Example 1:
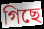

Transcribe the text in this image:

গিছে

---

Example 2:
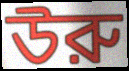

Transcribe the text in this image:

উরু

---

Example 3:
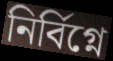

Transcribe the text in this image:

নির্বিগ্নে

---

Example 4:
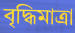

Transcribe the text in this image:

বৃদ্ধিমাত্রা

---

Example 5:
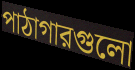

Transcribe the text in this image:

পাঠাগারগুলো